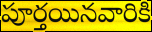
పూర్తయినవారికి